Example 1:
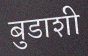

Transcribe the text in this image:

बुडाशी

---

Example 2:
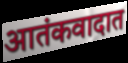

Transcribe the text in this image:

आतंकवादात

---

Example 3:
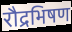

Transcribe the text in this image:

रौद्रभिषण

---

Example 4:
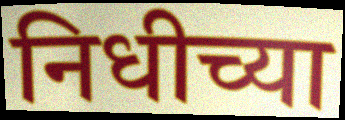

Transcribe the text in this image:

निधीच्या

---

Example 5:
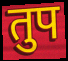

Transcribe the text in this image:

तुप